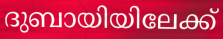
ദുബായിയിലേക്ക്